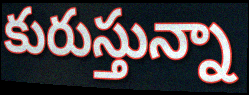
కురుస్తున్నా